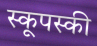
स्कूपस्की